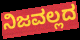
ನಿಜವಲ್ಲದ